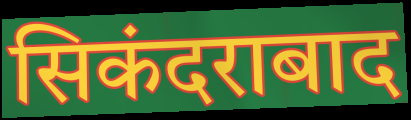
सिकंदराबाद